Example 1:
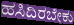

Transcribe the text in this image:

ಹಸಿದಿರಬೇಕು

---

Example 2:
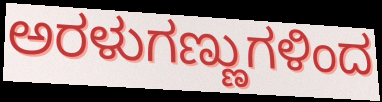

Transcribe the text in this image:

ಅರಳುಗಣ್ಣುಗಳಿಂದ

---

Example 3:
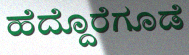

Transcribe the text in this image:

ಹೆದ್ದೊರೆಗೂಡೆ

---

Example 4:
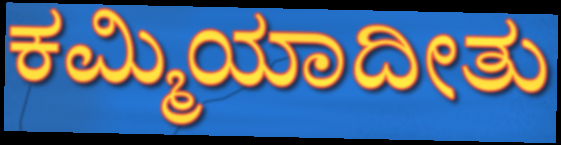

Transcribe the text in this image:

ಕಮ್ಮಿಯಾದೀತು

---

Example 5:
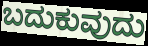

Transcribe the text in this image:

ಬದುಕುವುದು